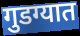
गुडग्यात